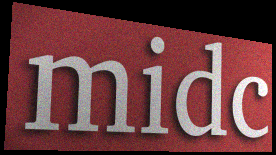
midc